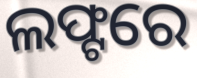
ଲଫ୍ଟରେ